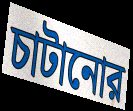
চাটানোর